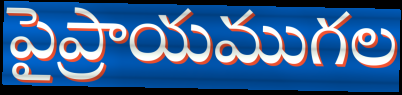
పైప్రాయముగల